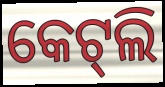
କେଟ୍‍ଲି